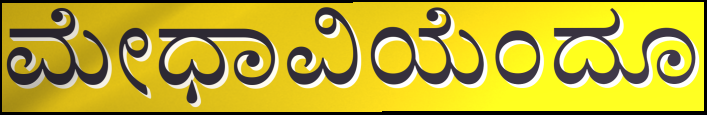
ಮೇಧಾವಿಯೆಂದೂ